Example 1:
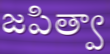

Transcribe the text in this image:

జపిత్వా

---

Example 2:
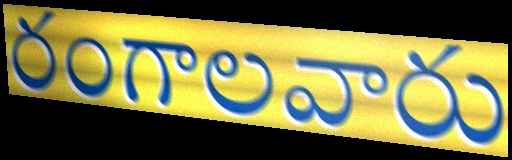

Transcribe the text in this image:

రంగాలవారు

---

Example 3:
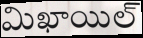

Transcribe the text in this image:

మిఖాయిల్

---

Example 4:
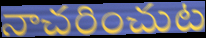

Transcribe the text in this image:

నాచరించుట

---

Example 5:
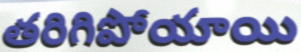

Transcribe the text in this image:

తరిగిపోయాయి